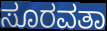
ಸೂರವತಾ